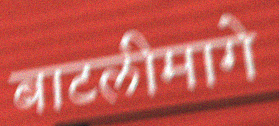
बाटलीमागे